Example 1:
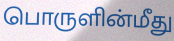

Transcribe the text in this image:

பொருளின்மீது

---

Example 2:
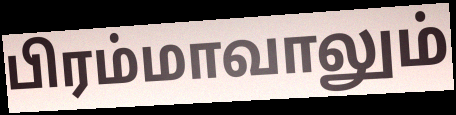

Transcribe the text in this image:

பிரம்மாவாலும்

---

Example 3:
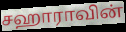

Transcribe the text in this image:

சஹாராவின்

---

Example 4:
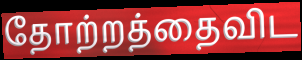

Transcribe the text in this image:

தோற்றத்தைவிட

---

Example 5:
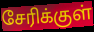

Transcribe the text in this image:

சேரிக்குள்